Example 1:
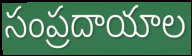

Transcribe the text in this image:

సంప్రదాయాల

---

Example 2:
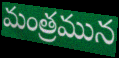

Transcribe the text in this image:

మంత్రమున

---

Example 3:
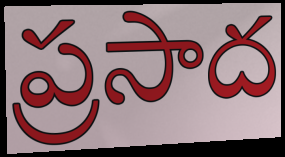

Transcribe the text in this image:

ప్రసాద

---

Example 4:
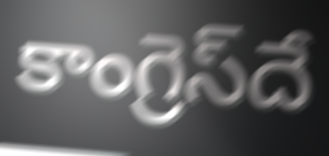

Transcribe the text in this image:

కాంగ్రెస్‌దే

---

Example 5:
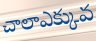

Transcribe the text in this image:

చాలాఎక్కువ